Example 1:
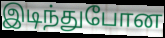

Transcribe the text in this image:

இடிந்துபோன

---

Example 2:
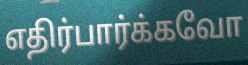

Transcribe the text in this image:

எதிர்பார்க்கவோ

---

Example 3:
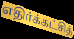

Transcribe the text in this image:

எதிர்க்கட்சித்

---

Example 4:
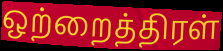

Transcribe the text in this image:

ஒற்றைத்திரள்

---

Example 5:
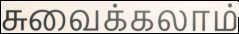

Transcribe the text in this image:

சுவைக்கலாம்